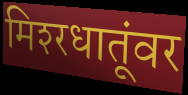
मिश्रधातूंवर